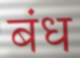
बंध